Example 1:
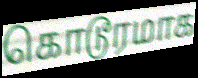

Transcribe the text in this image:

கொடூரமாக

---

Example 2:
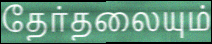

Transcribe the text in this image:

தேர்தலையும்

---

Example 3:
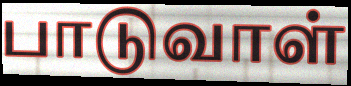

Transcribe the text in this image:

பாடுவாள்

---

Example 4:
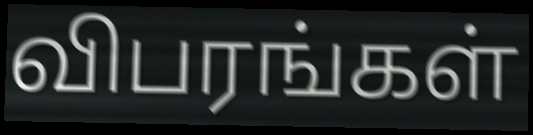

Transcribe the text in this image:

விபரங்கள்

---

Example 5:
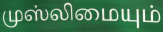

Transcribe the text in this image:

முஸ்லிமையும்